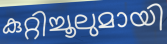
കുറ്റിച്ചൂലുമായി